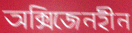
অক্সিজেনহীন